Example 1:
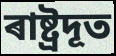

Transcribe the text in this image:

ৰাষ্ট্ৰদূত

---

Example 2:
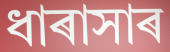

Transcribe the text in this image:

ধাৰাসাৰ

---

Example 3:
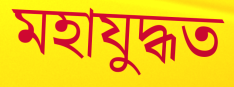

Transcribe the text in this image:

মহাযুদ্ধত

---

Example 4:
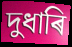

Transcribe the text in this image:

দুধাৰি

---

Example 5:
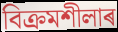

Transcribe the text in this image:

বিক্ৰমশীলাৰ